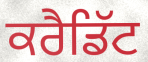
ਕਰੈਡਿੱਟ